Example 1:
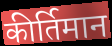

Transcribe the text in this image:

कीर्तिमान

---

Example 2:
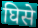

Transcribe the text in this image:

घिसे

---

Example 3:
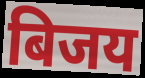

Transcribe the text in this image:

बिजय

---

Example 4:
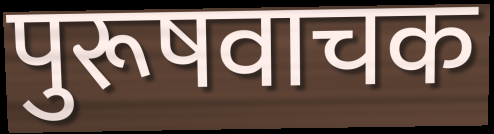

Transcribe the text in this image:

पुरूषवाचक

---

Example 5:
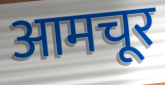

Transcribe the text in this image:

आमचूर